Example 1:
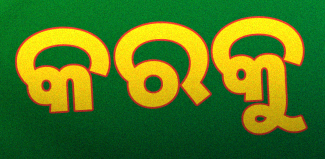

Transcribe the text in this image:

କରକୁ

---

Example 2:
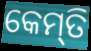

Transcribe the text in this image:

କେମ୍‍ତି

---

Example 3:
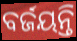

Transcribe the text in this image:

ବର୍ଜୟନ୍ତି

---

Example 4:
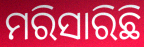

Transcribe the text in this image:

ମରିସାରିଛି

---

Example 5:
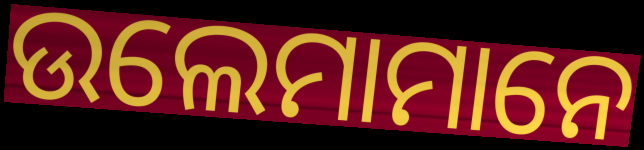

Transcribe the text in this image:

ଉଲେମାମାନେ